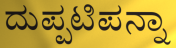
ದುಪ್ಪಟಿಪನ್ನಾ